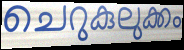
ചെറുകുലുക്കം